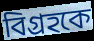
বিগ্রহকে